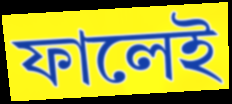
ফালেই